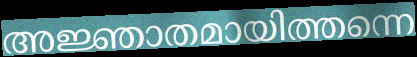
അജ്ഞാതമായിത്തന്നെ